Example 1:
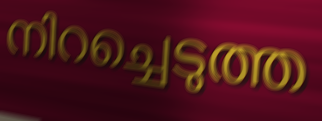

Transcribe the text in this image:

നിറച്ചെടുത്ത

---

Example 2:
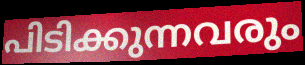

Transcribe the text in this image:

പിടിക്കുന്നവരും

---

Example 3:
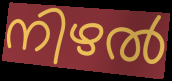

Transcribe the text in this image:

നിഴൽ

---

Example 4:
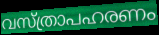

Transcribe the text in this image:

വസ്ത്രാപഹരണം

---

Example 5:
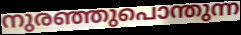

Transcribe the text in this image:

നുരഞ്ഞുപൊന്തുന്ന